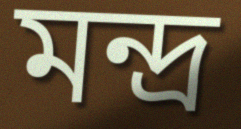
মন্দ্র